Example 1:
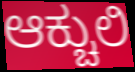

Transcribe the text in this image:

ಆಕ್ಚುಲಿ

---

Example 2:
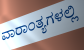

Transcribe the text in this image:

ವಾರಾಂತ್ಯಗಳಲ್ಲಿ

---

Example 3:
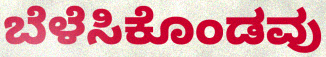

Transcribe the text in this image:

ಬೆಳೆಸಿಕೊಂಡವು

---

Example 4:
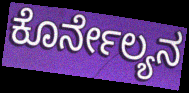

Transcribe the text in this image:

ಕೊರ್ನೇಲ್ಯನ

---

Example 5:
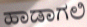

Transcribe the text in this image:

ಹಾಡಾಗಲಿ